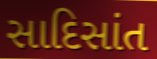
સાદિસાંત